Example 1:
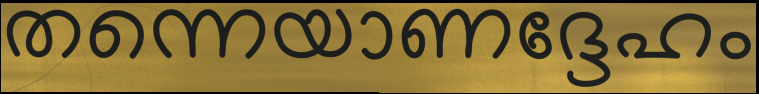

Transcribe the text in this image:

തന്നെയാണദ്ദേഹം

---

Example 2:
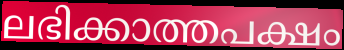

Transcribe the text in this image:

ലഭിക്കാത്തപക്ഷം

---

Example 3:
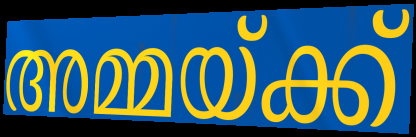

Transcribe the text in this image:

അമ്മയ്ക്ക്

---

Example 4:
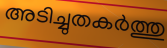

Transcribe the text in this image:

അടിച്ചുതകർത്തു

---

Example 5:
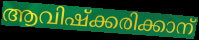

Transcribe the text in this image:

ആവിഷ്ക്കരിക്കാന്